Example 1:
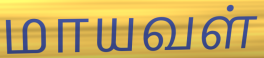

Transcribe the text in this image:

மாயவள்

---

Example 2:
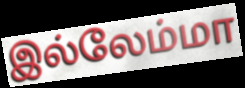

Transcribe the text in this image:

இல்லேம்மா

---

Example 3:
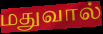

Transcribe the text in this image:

மதுவால்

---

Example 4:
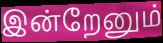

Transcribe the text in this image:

இன்றேனும்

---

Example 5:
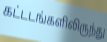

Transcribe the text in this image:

கட்டடங்களிலிருந்து